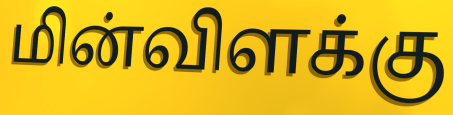
மின்விளக்கு